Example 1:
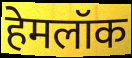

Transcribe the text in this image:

हेमलॉक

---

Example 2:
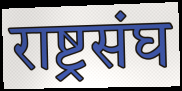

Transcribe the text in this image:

राष्ट्रसंघ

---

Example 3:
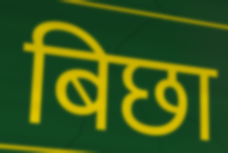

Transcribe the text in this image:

बिछा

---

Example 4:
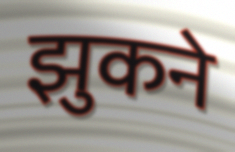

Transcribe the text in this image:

झुकने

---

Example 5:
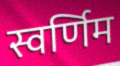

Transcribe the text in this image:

स्वर्णिम